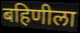
बहिणीला